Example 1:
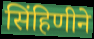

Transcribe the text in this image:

सिंहिणीने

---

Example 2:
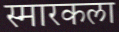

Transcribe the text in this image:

स्मारकला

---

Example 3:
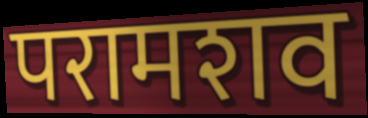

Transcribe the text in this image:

परामशव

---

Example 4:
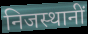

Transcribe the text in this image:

निजस्थानीं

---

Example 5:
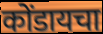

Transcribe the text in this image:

कोंडायचा